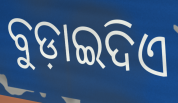
ବୁଡ଼ାଇଦିଏ